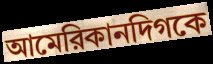
আমেরিকানদিগকে